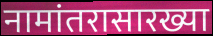
नामांतरासारख्या